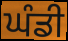
ਘੰਡੀ